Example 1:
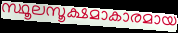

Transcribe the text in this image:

സ്ഥൂലസൂക്ഷമാകാരമായ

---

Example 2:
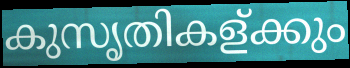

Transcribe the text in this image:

കുസൃതികള്ക്കും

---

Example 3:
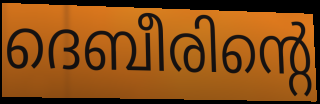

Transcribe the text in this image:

ദെബീരിന്റെ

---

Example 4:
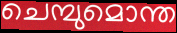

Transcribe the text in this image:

ചെമ്പുമൊന്ത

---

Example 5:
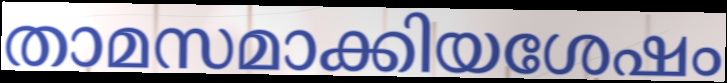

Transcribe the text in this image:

താമസമാക്കിയശേഷം